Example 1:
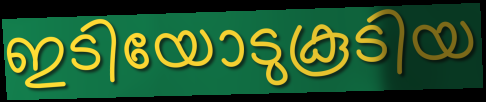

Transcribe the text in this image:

ഇടിയോടുകൂടിയ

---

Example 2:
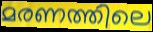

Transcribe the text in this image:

മരണത്തിലെ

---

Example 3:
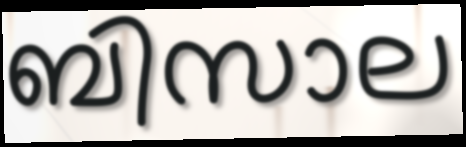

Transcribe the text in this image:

ബിസാല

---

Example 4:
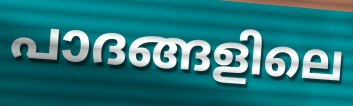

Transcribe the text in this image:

പാദങ്ങളിലെ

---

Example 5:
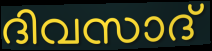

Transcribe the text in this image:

ദിവസാദ്